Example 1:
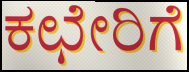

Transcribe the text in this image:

ಕಛೇರಿಗೆ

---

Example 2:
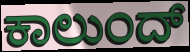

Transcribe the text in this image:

ಕಾಲುಂದ್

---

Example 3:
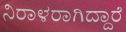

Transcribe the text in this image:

ನಿರಾಳರಾಗಿದ್ದಾರೆ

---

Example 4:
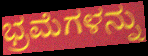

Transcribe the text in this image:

ಭ್ರಮೆಗಳನ್ನು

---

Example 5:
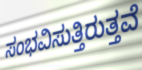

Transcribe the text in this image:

ಸಂಭವಿಸುತ್ತಿರುತ್ತವೆ